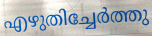
എഴുതിച്ചേർത്തു